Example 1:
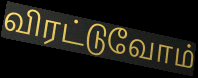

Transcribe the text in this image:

விரட்டுவோம்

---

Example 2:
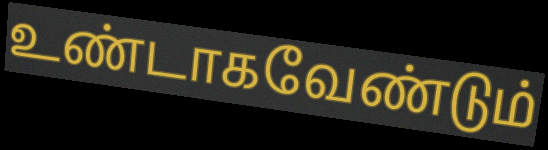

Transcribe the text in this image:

உண்டாகவேண்டும்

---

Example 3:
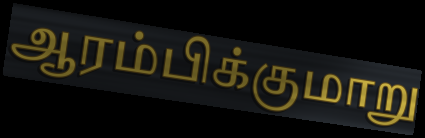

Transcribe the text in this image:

ஆரம்பிக்குமாறு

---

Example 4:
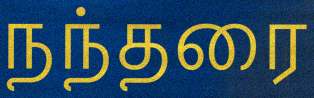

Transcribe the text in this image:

நந்தரை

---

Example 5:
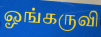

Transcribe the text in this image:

ஓங்கருவி